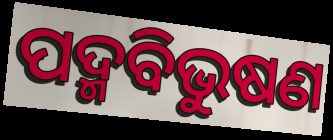
ପଦ୍ମବିଭୁଷଣ